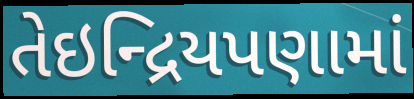
તેઇન્દ્રિયપણામાં